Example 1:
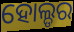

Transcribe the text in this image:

ହୋଲ୍ଡର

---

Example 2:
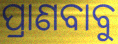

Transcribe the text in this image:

ପ୍ରାଣବାବୁ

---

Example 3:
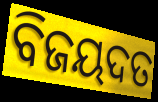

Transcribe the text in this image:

ବିଜୟଦତ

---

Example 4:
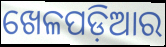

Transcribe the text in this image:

ଖେଳପଡ଼ିଆର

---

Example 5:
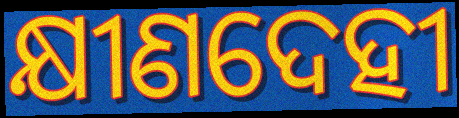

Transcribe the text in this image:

କ୍ଷୀଣଦେହୀ